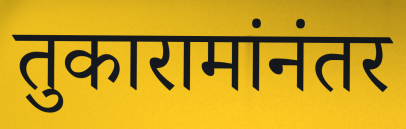
तुकारामांनंतर